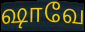
ஷாவே